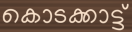
കൊടക്കാട്ട്